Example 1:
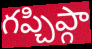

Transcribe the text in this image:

గప్చిప్గా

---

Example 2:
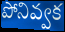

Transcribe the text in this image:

పోనివ్వక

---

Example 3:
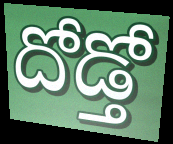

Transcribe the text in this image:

దోడ్తో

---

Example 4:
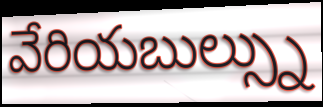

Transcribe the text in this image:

వేరియబుల్స్ను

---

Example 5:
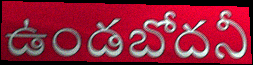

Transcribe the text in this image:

ఉండబోదనీ